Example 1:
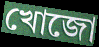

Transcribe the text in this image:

খোজো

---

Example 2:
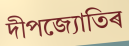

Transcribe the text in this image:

দীপজ্যোতিৰ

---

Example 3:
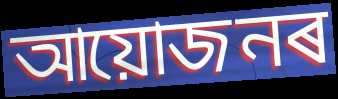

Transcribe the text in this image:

আয়োজনৰ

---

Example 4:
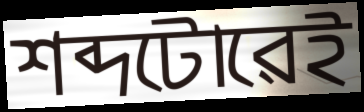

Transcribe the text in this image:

শব্দটোৱেই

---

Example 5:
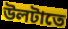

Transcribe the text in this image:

উলটাতে